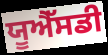
ਯੂਐੱਸਡੀ